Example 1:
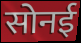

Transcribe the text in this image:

सोनई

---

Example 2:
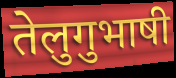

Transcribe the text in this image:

तेलुगुभाषी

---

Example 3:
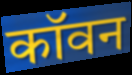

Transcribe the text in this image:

कॉवन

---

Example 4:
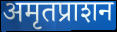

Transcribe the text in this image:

अमृतप्राशन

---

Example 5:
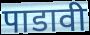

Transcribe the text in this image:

पाडावी